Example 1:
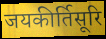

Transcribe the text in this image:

जयकीर्तिसूरि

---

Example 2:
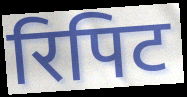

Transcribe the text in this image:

रिपिट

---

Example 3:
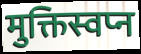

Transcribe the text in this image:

मुक्तिस्वप्न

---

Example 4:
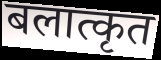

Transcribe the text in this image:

बलात्कृत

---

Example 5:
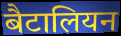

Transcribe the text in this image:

बैटालियन